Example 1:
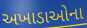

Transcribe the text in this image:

અખાડાઓના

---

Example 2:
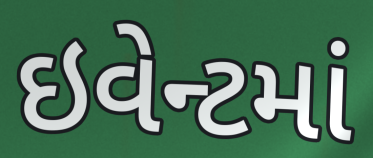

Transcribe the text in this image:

ઇવેન્ટમાં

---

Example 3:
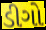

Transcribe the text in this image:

ડીગો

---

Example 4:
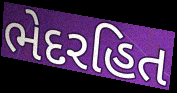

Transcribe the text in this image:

ભેદરહિત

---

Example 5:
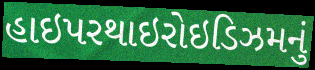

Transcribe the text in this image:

હાઇપરથાઇરોઇડિઝમનું